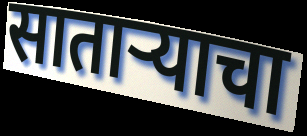
साताऱ्याचा